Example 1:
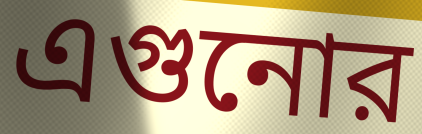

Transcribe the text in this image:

এগুনোর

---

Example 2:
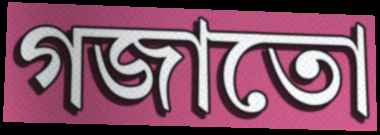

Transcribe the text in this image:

গজাতো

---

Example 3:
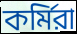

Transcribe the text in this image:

কর্মিরা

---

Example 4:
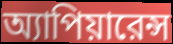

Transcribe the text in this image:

অ্যাপিয়ারেন্স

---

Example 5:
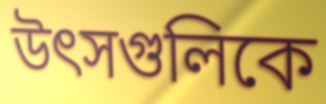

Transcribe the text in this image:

উৎসগুলিকে